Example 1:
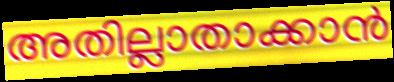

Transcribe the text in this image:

അതില്ലാതാക്കാൻ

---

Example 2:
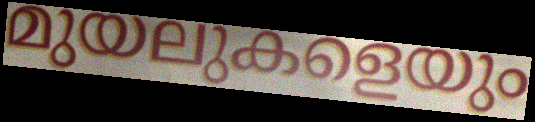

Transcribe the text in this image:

മുയലുകളെയും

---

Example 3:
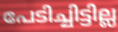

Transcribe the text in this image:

പേടിച്ചിട്ടില്ല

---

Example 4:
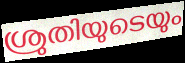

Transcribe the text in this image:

ശ്രുതിയുടെയും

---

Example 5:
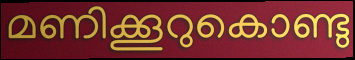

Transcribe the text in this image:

മണിക്കൂറുകൊണ്ടു